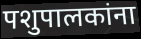
पशुपालकांना